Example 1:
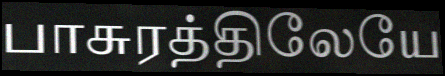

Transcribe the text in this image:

பாசுரத்திலேயே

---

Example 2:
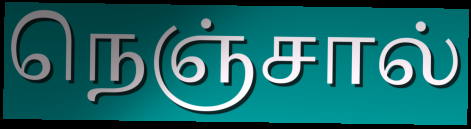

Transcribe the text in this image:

நெஞ்சால்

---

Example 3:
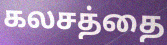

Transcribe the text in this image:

கலசத்தை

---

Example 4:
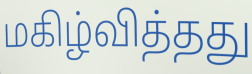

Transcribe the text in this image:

மகிழ்வித்தது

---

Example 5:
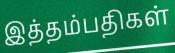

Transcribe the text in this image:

இத்தம்பதிகள்